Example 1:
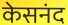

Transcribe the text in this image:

केसनंद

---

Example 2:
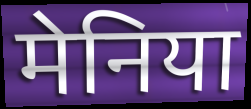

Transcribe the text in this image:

मेनिया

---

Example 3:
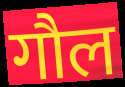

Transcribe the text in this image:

गौल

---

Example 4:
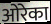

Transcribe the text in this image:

ओरेका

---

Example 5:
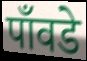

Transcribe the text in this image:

पाँवडे